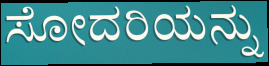
ಸೋದರಿಯನ್ನು